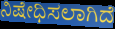
ನಿಷೇಧಿಸಲಾಗಿದೆ